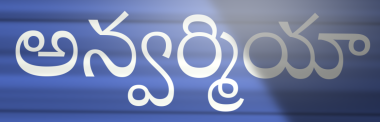
అన్వర్మియా